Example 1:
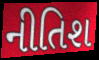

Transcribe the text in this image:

નીતિશ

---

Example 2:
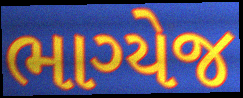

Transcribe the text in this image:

ભાગ્યેજ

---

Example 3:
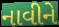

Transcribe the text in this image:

નાવીને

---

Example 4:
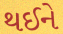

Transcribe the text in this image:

થઈને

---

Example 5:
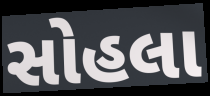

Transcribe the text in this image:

સોહલા